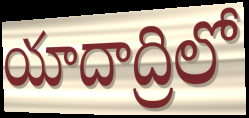
యాదాద్రిలో